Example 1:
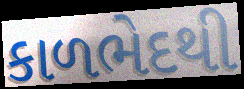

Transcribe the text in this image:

કાળભેદથી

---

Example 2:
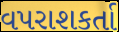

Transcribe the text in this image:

વપરાશકર્તા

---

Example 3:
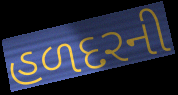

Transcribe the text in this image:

હળદરની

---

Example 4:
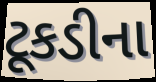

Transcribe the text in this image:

ટૂકડીના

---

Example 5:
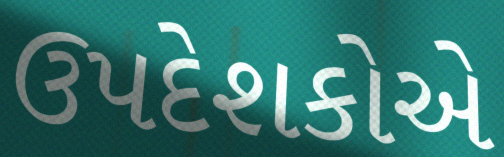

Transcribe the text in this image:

ઉપદેશકોએ